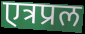
एत्रप्रल